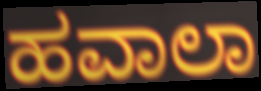
ಹವಾಲಾ